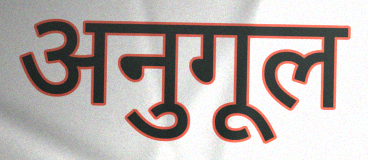
अनुगूल